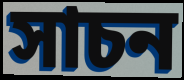
সাচন